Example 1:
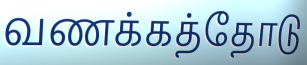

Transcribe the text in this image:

வணக்கத்தோடு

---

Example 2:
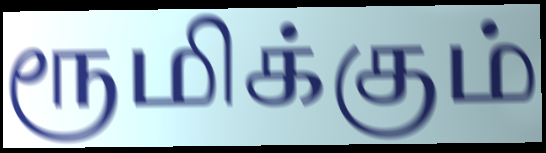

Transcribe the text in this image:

ரூமிக்கும்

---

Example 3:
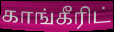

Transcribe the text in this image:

காங்கீரிட்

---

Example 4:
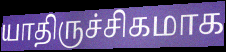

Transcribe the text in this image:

யாதிருச்சிகமாக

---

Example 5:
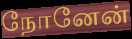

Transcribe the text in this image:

நோனேன்